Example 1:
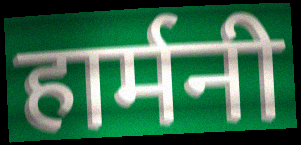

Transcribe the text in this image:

हार्मनी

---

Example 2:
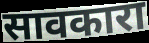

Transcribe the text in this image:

सावकारा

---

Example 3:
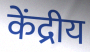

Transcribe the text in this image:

केंद्रीय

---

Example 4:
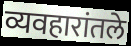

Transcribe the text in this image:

व्यवहारांतले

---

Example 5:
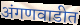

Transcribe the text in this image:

अंगणवाडीत